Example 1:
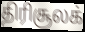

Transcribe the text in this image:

திரிசூலக்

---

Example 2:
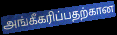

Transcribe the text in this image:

அங்கீகரிப்பதற்கான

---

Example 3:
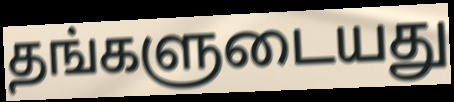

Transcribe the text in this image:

தங்களுடையது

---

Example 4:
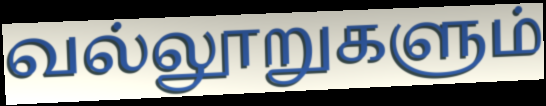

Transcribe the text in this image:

வல்லூறுகளும்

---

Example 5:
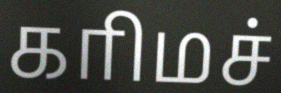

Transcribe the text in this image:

கரிமச்